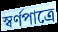
স্বর্ণপাত্রে